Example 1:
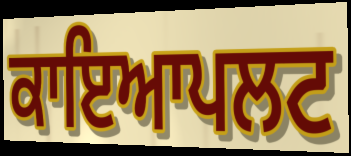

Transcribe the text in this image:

ਕਾਇਆਪਲਟ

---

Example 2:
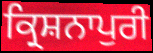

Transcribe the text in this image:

ਕ੍ਰਿਸ਼ਨਾਪੁਰੀ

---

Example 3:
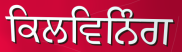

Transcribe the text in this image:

ਕਿਲਵਿਨਿੰਗ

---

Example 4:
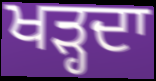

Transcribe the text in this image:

ਖੜ੍ਹਦਾ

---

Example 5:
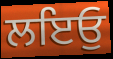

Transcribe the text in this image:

ਲਇਓੁ